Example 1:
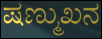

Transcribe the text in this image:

ಷಣ್ಮುಖನ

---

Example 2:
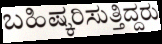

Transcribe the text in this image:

ಬಹಿಷ್ಕರಿಸುತ್ತಿದ್ದರು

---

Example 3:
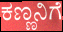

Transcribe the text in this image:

ಕಣ್ಣನಿಗೆ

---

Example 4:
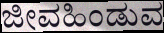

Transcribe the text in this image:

ಜೀವಹಿಂಡುವ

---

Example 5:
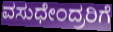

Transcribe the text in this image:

ವಸುಧೇಂದ್ರರಿಗೆ